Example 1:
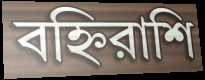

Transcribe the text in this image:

বহ্নিরাশি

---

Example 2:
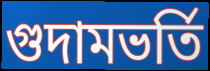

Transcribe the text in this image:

গুদামভর্তি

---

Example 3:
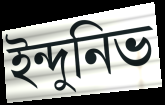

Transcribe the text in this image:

ইন্দুনিভ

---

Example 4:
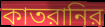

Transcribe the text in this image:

কাতরানির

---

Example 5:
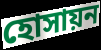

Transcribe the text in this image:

হোসায়ন